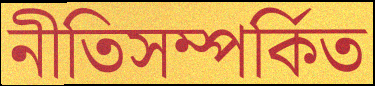
নীতিসম্পর্কিত